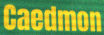
Caedmon